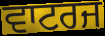
ਵਾਟਰਜ